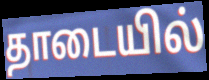
தாடையில்